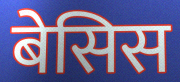
बेसिस